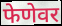
फेणेवर